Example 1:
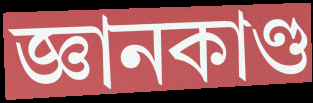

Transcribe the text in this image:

জ্ঞানকাণ্ড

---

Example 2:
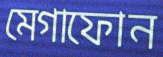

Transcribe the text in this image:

মেগাফোন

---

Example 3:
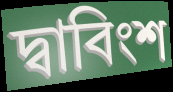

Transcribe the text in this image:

দ্বাবিংশ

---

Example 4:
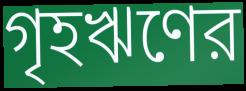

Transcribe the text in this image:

গৃহঋণের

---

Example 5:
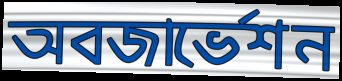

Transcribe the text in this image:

অবজার্ভেশন